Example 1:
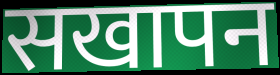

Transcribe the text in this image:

सखापन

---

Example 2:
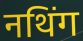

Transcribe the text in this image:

नथिंग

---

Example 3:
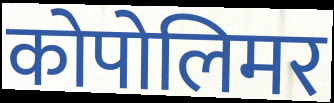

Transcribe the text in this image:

कोपोलिमर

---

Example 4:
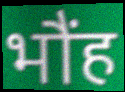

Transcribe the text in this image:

भौंह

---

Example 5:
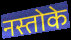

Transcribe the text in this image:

नस्तोके